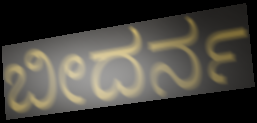
ಬೀದರ್ನ